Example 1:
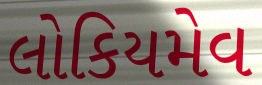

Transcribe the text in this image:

લોકિયમેવ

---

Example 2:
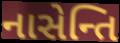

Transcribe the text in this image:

નાસેન્તિ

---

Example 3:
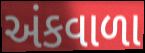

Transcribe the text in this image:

અંકવાળા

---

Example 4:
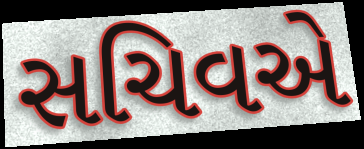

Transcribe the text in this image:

સચિવએ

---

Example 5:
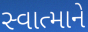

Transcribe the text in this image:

સ્વાત્માને